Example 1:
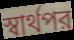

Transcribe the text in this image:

স্বার্থপর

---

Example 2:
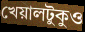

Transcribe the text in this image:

খেয়ালটুকুও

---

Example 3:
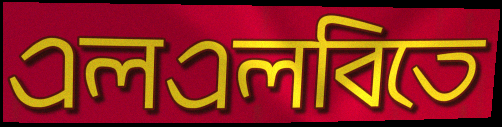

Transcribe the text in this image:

এলএলবিতে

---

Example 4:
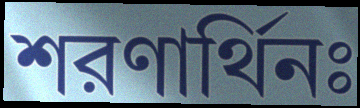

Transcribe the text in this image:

শরণার্থিনঃ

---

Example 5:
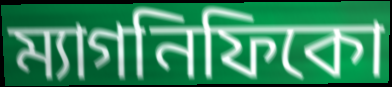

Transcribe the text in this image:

ম্যাগনিফিকো